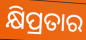
କ୍ଷିପ୍ରତାର